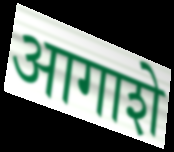
आगाशे